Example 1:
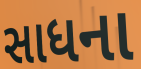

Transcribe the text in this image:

સાધના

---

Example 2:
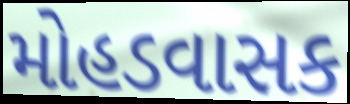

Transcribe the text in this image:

મોહડવાસક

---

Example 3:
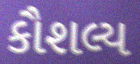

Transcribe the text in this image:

કૌશલ્ય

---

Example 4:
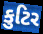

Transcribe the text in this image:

કુટિર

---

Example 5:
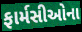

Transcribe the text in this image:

ફાર્મસીઓના